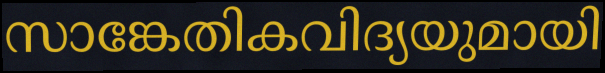
സാങ്കേതികവിദ്യയുമായി